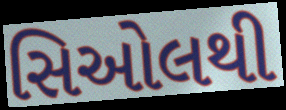
સિઓલથી